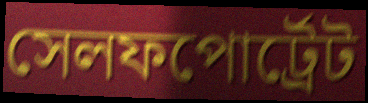
সেলফপোর্ট্রেট